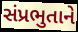
સંપ્રભુતાને